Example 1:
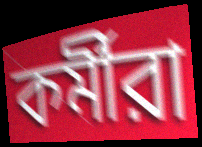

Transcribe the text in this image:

কর্মীরা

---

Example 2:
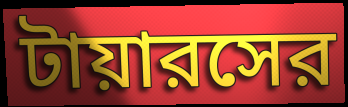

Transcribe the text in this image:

টায়ারসের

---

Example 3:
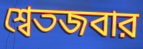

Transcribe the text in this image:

শ্বেতজবার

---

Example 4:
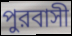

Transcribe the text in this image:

পুরবাসী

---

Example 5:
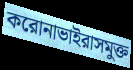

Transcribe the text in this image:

করোনাভাইরাসমুক্ত